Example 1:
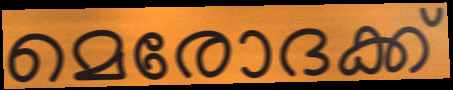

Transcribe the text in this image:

മെരോദക്ക്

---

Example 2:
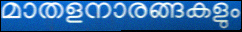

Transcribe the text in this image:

മാതളനാരങ്ങകളും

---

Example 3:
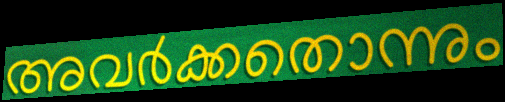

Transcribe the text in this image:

അവർക്കതൊന്നും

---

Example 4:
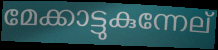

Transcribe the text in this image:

മേക്കാട്ടുകുന്നേല്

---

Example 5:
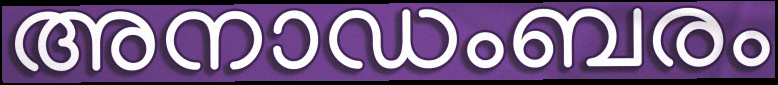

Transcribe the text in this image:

അനാഡംബരം